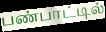
பண்பாட்டில்